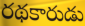
రథకారుడు